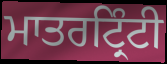
ਮਾਤਰਟ੍ਰਿੰਟੀ